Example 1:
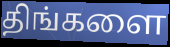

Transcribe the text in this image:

திங்களை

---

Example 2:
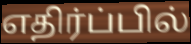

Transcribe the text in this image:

எதிர்ப்பில்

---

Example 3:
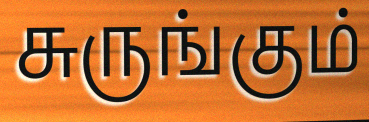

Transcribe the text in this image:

சுருங்கும்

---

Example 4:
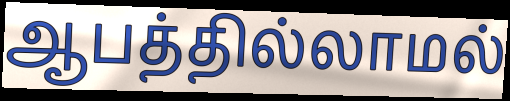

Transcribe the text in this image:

ஆபத்தில்லாமல்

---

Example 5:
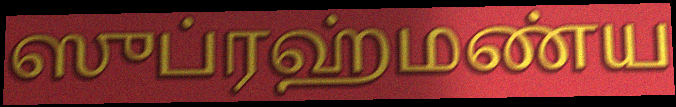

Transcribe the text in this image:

ஸுப்ரஹ்மண்ய